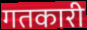
गतकारी